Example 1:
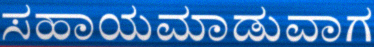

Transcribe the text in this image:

ಸಹಾಯಮಾಡುವಾಗ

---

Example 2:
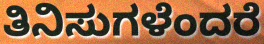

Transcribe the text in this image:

ತಿನಿಸುಗಳೆಂದರೆ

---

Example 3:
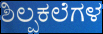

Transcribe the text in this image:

ಶಿಲ್ಪಕಲೆಗಳ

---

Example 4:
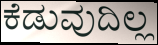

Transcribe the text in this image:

ಕೆಡುವುದಿಲ್ಲ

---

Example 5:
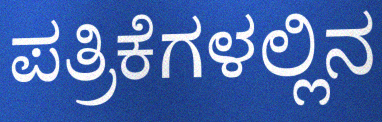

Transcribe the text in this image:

ಪತ್ರಿಕೆಗಳಲ್ಲಿನ